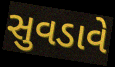
સુવડાવે